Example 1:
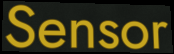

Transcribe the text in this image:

Sensor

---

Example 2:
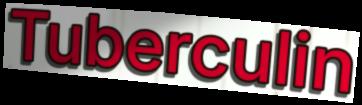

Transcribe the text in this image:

Tuberculin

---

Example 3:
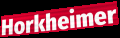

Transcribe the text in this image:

Horkheimer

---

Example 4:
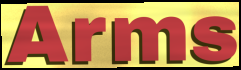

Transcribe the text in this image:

Arms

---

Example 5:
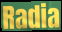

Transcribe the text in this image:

Radia